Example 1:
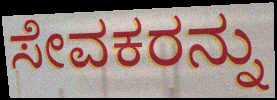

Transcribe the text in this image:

ಸೇವಕರನ್ನು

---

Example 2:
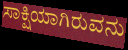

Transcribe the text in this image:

ಸಾಕ್ಷಿಯಾಗಿರುವನು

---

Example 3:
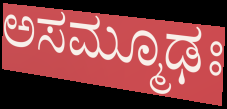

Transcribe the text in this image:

ಅಸಮ್ಮೂಢಃ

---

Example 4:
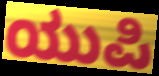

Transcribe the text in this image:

ಯುಪಿ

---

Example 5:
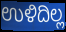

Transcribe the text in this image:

ಉಳಿದಿಲ್ಲ